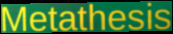
Metathesis